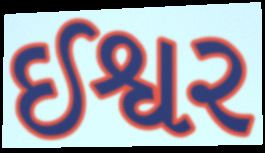
ઈશ્વર